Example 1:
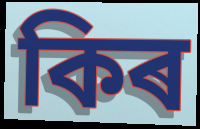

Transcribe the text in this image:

কিৰ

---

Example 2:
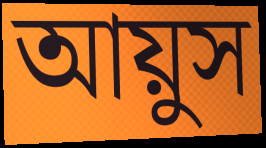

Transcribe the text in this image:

আয়ুস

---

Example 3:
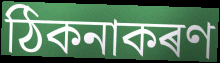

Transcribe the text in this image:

ঠিকনাকৰণ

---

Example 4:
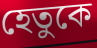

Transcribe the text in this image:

হেতুকে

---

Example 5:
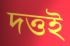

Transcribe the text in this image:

দত্তই